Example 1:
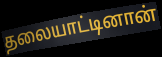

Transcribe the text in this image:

தலையாட்டினான்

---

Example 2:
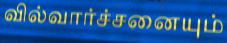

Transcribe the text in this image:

வில்வார்ச்சனையும்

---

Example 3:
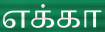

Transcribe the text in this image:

எக்கா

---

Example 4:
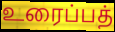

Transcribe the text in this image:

உரைப்பத்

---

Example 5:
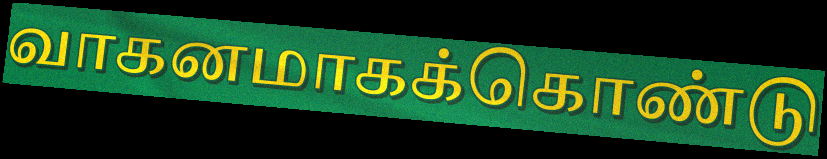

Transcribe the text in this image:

வாகனமாகக்கொண்டு